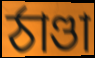
ঠাণ্ডা